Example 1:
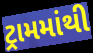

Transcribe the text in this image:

ટ્રામમાંથી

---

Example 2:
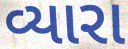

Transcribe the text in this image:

વ્યારા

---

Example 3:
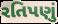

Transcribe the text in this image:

રતિપણું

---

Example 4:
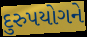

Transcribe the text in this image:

દુરુપયોગને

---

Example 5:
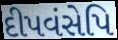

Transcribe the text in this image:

દીપવંસેપિ